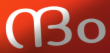
ന്ദം